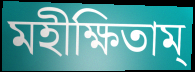
মহীক্ষিতাম্